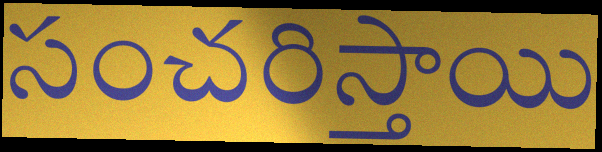
సంచరిస్తాయి